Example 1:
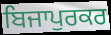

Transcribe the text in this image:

ਬਿਜਾਪੁਰਕਰ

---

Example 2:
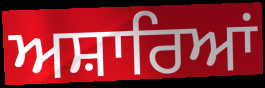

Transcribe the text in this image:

ਅਸ਼ਾਰਿਆਂ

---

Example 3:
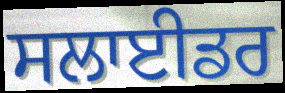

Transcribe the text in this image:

ਸਲਾਈਡਰ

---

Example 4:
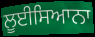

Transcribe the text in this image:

ਲੂਈਸਿਆਨਾ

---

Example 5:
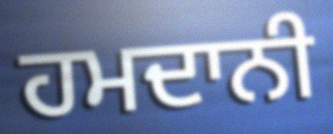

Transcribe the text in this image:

ਹਮਦਾਨੀ